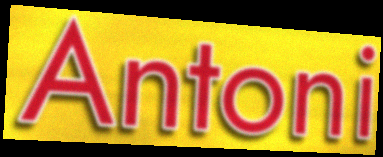
Antoni